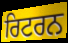
ਰਿਟਰਨ